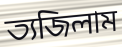
ত্যজিলাম